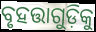
ବୃହତ୍ତାଗୁଡ଼ିକୁ